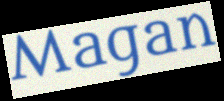
Magan